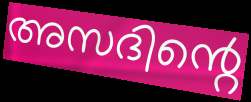
അസദിന്റെ